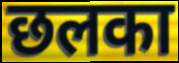
छलका